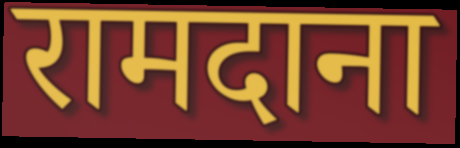
रामदाना